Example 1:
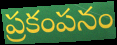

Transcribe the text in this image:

ప్రకంపనం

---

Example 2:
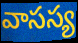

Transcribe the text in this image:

వాసస్య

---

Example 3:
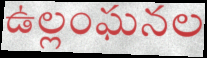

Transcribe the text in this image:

ఉల్లంఘనల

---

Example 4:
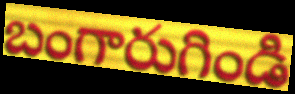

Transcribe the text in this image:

బంగారుగిండి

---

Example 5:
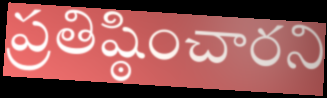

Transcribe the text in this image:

ప్రతిష్ఠించారని